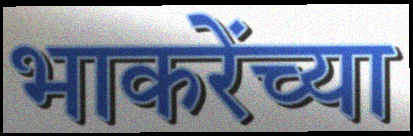
भाकरेंच्या